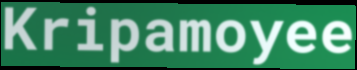
Kripamoyee